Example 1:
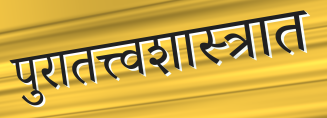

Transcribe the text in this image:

पुरातत्त्वशास्त्रात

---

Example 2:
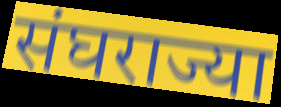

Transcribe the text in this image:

संघराज्या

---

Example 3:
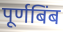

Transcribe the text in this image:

पूर्णबिंब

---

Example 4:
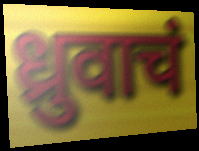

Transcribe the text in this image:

ध्रुवाचं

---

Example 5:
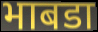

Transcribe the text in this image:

भाबडा